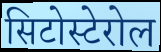
सिटोस्टेरोल